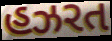
હઝરત